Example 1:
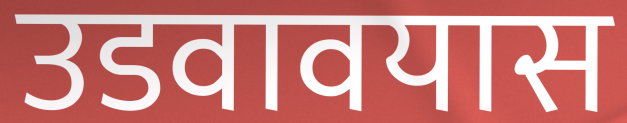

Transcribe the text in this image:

उडवावयास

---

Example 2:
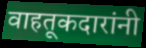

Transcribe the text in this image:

वाहतूकदारांनी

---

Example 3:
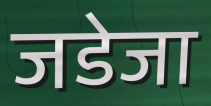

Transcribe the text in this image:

जडेजा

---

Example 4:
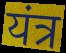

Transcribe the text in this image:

यंत्र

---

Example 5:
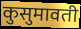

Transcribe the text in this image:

कुसुमावती